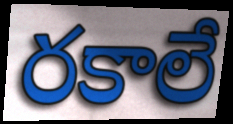
రకాలే